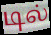
டில்